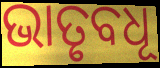
ଭାତୃବଧୂ